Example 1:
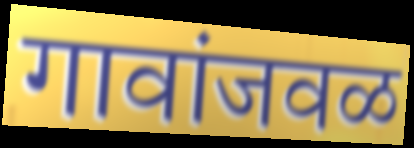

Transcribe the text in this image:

गावांजवळ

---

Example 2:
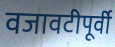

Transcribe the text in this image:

वजावटीपूर्वी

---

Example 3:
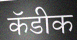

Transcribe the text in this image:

कॅडीक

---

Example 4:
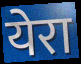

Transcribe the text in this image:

येरा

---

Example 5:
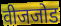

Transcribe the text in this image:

वीजजोड